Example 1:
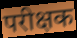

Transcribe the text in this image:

परीक्षक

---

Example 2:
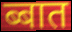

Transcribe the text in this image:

ब्बात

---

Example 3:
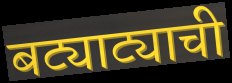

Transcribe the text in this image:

बट्याट्याची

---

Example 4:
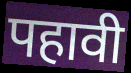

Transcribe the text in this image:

पहावी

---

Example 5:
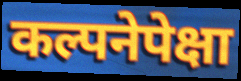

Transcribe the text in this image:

कल्पनेपेक्षा